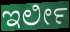
ಇರ್ಲೀ